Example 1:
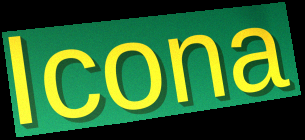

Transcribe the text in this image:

Icona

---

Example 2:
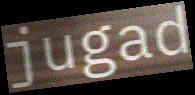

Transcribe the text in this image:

jugad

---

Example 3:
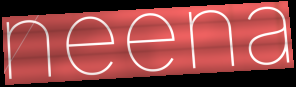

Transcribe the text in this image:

neena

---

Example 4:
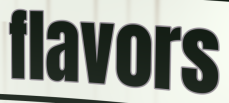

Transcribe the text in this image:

flavors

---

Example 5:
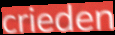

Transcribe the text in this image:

crieden